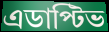
এডাপ্টিভ